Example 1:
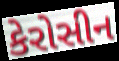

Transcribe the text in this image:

કેરોસીન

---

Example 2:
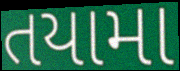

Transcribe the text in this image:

તયામા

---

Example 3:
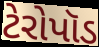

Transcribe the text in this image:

ટેરોપૉડ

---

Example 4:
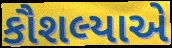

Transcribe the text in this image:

કૌશલ્યાએ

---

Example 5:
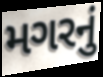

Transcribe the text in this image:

મગરનું